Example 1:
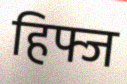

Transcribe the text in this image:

हिफ्ज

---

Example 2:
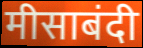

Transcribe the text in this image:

मीसाबंदी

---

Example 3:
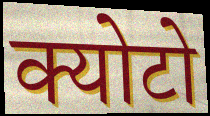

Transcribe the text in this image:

क्योटो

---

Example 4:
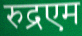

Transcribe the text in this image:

रुद्रएम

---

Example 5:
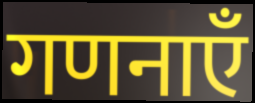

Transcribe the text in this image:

गणनाएँ